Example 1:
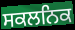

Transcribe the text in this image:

ਸਕਲਨਿਕ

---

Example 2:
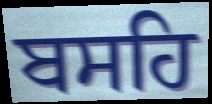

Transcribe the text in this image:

ਬਸਹਿ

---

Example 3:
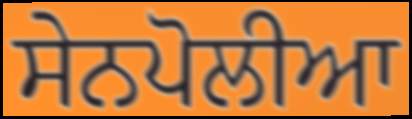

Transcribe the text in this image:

ਸੇਨਪੋਲੀਆ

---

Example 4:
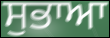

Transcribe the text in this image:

ਸੁਭਾਆ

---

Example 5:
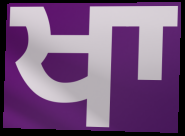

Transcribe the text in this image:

ਖਾ